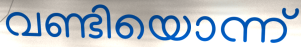
വണ്ടിയൊന്ന്